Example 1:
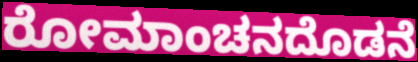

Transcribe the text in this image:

ರೋಮಾಂಚನದೊಡನೆ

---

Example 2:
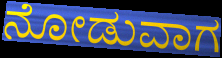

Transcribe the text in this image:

ನೋಡುವಾಗ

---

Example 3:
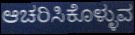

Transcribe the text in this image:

ಆಚರಿಸಿಕೊಳ್ಳುವ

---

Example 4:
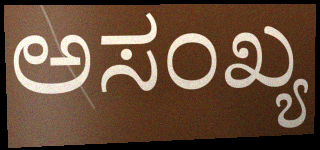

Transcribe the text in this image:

ಅಸಂಖ್ಯ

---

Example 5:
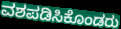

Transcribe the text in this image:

ವಶಪಡಿಸಿಕೊಂಡರು